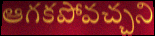
ఆగకపోవచ్చని